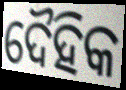
ଦୈହିକ